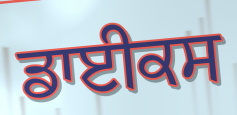
ਡਾਈਕਸ